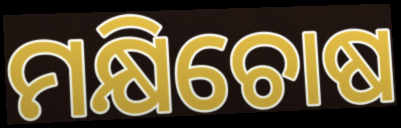
ମକ୍ଷିଚୋଷ